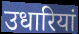
उधारियां